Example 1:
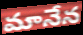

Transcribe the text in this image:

మానేన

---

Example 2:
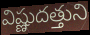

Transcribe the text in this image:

విష్ణుదత్తుని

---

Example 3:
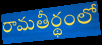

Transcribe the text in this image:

రామతీర్థంలో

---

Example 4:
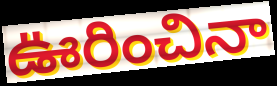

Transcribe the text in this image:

ఊరించినా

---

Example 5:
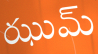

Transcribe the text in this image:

ఝుమ్